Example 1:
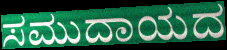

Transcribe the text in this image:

ಸಮುದಾಯದ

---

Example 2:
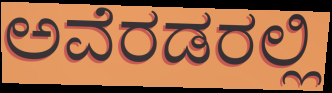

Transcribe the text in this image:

ಅವೆರಡರಲ್ಲಿ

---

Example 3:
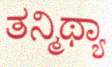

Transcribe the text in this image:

ತನ್ಮಿಥ್ಯಾ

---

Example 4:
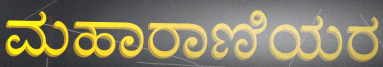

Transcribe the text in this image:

ಮಹಾರಾಣಿಯರ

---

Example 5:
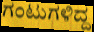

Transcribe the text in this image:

ಗಂಟುಗಳಿದ್ದ